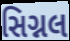
સિગ્નલ